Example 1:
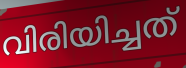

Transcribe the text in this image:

വിരിയിച്ചത്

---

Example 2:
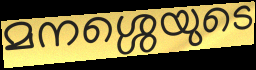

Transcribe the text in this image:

മനശ്ശെയുടെ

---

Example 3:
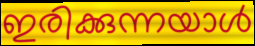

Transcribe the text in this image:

ഇരിക്കുന്നയാൾ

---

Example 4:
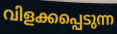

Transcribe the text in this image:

വിളക്കപ്പെടുന്ന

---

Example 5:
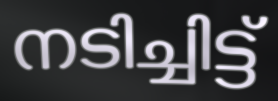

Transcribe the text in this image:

നടിച്ചിട്ട്